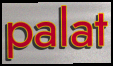
palat